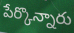
పేర్కొన్నారు